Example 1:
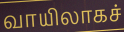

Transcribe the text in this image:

வாயிலாகச்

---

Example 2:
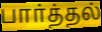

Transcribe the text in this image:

பார்த்தல்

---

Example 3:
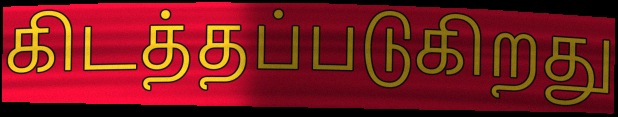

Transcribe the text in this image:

கிடத்தப்படுகிறது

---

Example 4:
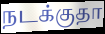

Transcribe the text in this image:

நடக்குதா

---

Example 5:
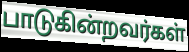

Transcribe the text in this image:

பாடுகின்றவர்கள்